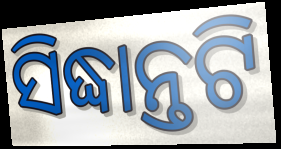
ସିଦ୍ଧାନ୍ତଟି